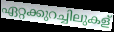
ഏറ്റക്കുറച്ചിലുകള്